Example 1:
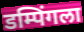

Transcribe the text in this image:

डम्पिंगला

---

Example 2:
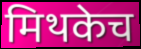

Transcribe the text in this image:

मिथकेच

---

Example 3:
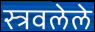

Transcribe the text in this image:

स्त्रवलेले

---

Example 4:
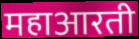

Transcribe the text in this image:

महाआरती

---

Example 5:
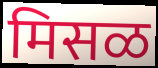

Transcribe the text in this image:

मिसळ